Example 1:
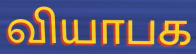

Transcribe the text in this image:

வியாபக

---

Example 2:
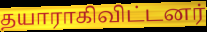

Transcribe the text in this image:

தயாராகிவிட்டனர்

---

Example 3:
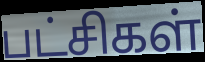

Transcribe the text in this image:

பட்சிகள்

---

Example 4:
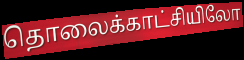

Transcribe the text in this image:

தொலைக்காட்சியிலோ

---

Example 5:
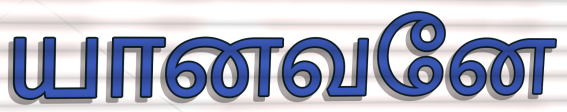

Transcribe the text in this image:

யானவனே